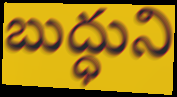
బుద్ధుని